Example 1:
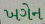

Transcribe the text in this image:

ખગેન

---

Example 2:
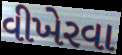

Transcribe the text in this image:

વીખેરવા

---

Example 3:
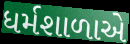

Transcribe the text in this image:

ધર્મશાળાએ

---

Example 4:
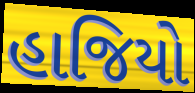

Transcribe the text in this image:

હાજિયો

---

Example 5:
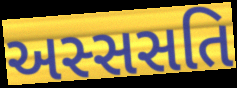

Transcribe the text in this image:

અસ્સસતિ